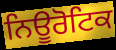
ਨਿਊਰੋਟਿਕ